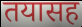
तयासह